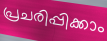
പ്രചരിപ്പിക്കാം